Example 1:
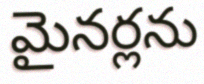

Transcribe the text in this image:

మైనర్లను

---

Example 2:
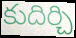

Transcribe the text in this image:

కుదిర్చి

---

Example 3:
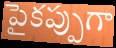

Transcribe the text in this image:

పైకప్పుగా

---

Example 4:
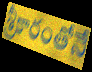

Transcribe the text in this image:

శ్రీకారంతోనే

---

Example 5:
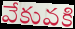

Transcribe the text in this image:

వేకువకి